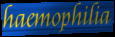
haemophilia